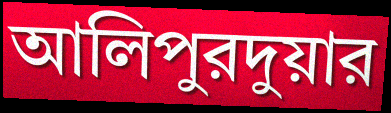
আলিপুরদুয়ার